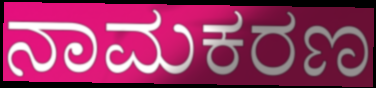
ನಾಮಕರಣ